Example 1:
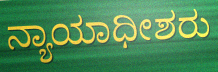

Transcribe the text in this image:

ನ್ಯಾಯಾಧೀಶರು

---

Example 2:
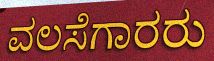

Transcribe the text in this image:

ವಲಸೆಗಾರರು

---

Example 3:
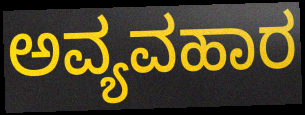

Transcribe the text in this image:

ಅವ್ಯವಹಾರ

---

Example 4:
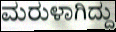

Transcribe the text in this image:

ಮರುಳಾಗಿದ್ದು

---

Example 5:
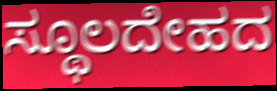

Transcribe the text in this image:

ಸ್ಥೂಲದೇಹದ